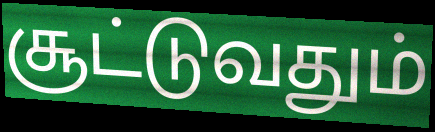
சூட்டுவதும்